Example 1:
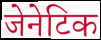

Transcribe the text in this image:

जेनेटिक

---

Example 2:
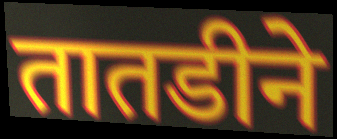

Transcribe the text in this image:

तातडीने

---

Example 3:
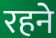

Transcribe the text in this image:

रहने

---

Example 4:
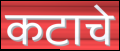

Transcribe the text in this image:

कटाचे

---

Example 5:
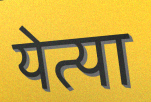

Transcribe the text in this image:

येत्या